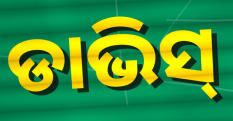
ଡାଭିସ୍